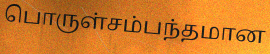
பொருள்சம்பந்தமான